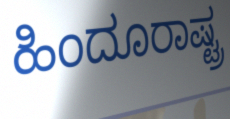
ಹಿಂದೂರಾಷ್ಟ್ರ